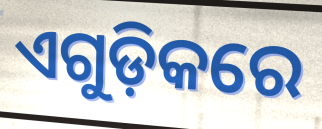
ଏଗୁଡ଼ିକରେ